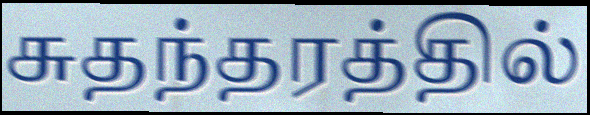
சுதந்தரத்தில்